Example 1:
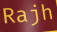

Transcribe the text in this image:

Rajh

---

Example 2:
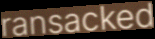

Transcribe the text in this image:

ransacked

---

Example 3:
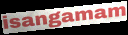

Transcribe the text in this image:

isangamam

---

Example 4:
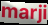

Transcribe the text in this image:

marji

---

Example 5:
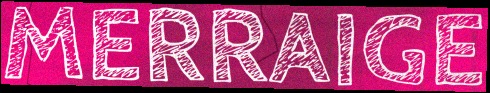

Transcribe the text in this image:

MERRAIGE